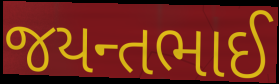
જયન્તભાઈ